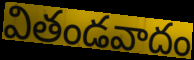
వితండవాదం